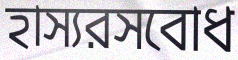
হাস্যরসবোধ